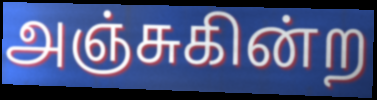
அஞ்சுகின்ற